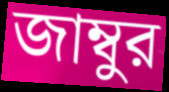
জাম্বুর